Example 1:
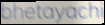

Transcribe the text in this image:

bhetayachi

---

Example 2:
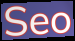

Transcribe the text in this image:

Seo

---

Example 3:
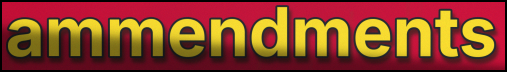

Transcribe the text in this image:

ammendments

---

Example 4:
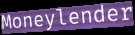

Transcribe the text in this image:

Moneylender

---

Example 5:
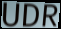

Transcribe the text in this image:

UDR